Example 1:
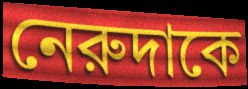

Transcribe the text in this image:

নেরুদাকে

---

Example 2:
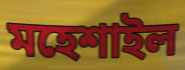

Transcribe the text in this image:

মহেশাইল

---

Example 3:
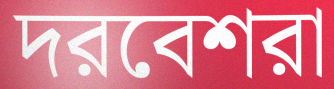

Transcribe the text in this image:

দরবেশরা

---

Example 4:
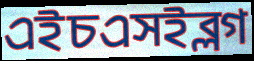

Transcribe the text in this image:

এইচএসইব্লগ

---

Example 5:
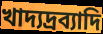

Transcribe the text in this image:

খাদ্যদ্রব্যাদি